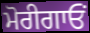
ਮੋਰੀਗਾਓਂ